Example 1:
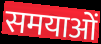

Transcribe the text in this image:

समयाओं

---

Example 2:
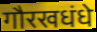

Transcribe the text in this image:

गौरखधंधे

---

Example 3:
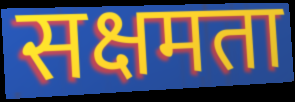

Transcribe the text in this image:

सक्षमता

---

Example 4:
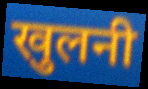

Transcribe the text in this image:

खुलनी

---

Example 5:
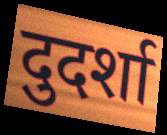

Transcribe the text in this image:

दुदर्शा